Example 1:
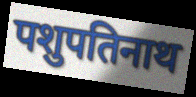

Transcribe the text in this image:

पशुपतिनाथ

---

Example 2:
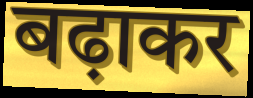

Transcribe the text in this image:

बढ़ाकर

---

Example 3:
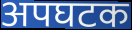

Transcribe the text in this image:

अपघटक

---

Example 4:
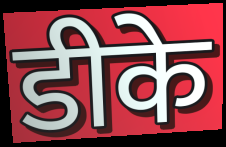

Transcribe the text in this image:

डीके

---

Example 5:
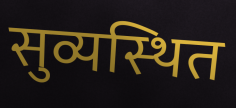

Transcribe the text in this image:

सुव्यस्थित